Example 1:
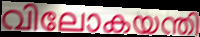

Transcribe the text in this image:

വിലോകയന്തി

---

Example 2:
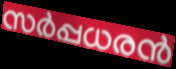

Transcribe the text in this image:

സർപ്പധരൻ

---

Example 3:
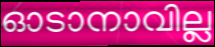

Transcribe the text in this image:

ഓടാനാവില്ല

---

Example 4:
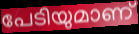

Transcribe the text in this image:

പേടിയുമാണ്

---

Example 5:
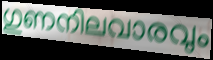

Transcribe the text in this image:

ഗുണനിലവാരവും